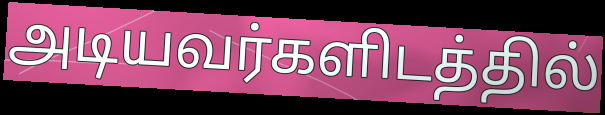
அடியவர்களிடத்தில்